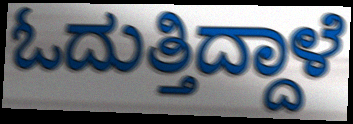
ಓದುತ್ತಿದ್ದಾಳೆ